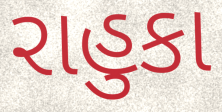
રાહુકા